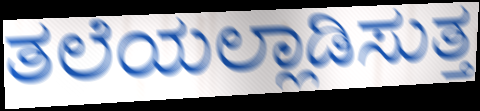
ತಲೆಯಲ್ಲಾಡಿಸುತ್ತ